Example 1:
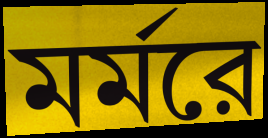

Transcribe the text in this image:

মর্মরে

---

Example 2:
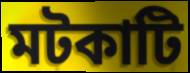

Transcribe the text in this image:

মটকাটি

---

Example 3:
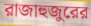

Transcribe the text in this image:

রাজাহুজুরের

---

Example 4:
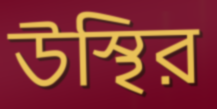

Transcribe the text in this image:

উস্থির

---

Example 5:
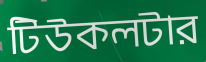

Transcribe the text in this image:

টিউকলটার